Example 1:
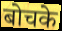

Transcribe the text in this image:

बोचके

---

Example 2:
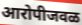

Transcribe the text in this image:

आरोपीजवळ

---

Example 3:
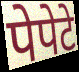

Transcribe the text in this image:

पेपेटे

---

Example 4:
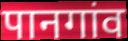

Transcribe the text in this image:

पानगांव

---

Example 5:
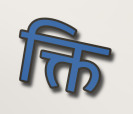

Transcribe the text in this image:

क्ति